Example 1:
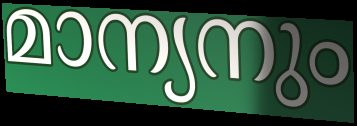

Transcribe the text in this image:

മാന്യനും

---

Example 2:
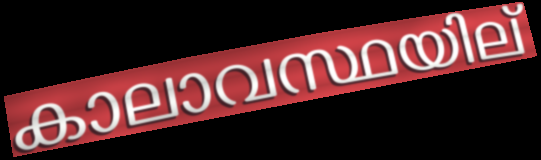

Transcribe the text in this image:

കാലാവസ്ഥയില്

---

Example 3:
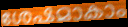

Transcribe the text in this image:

ശേഷമാകാം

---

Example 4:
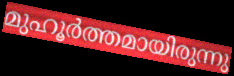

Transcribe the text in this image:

മുഹൂർത്തമായിരുന്നു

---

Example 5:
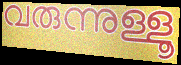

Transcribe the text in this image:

വരുന്നുള്ളൂ